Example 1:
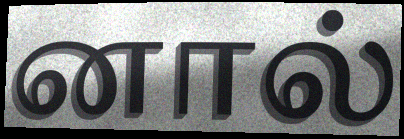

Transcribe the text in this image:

னால்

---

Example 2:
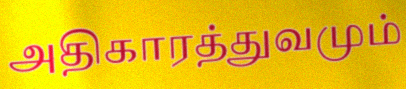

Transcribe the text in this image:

அதிகாரத்துவமும்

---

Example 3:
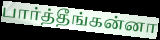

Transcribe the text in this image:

பார்த்தீங்கன்னா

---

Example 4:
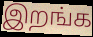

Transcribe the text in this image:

இறங்க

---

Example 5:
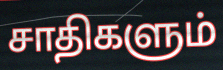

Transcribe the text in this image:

சாதிகளும்